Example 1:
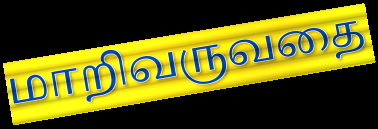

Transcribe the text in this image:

மாறிவருவதை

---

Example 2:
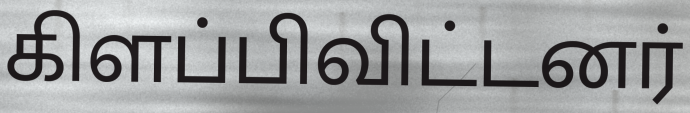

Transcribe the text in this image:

கிளப்பிவிட்டனர்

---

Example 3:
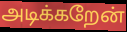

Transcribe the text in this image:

அடிக்கறேன்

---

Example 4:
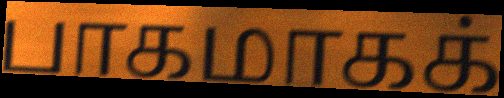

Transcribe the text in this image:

பாகமாகக்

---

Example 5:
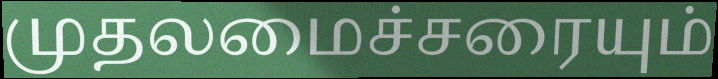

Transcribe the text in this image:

முதலமைச்சரையும்